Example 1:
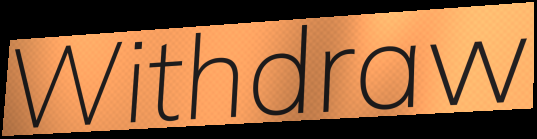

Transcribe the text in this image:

Withdraw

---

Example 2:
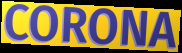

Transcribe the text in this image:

CORONA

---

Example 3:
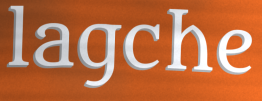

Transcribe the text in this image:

lagche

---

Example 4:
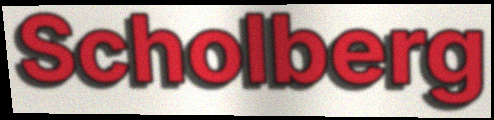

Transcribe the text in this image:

Scholberg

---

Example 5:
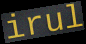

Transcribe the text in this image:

irul